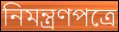
নিমন্ত্রণপত্রে